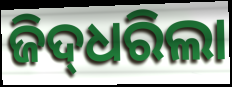
ଜିଦ୍‌ଧରିଲା